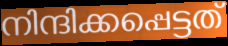
നിന്ദിക്കപ്പെട്ടത്